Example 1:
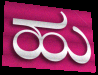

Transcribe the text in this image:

ಹು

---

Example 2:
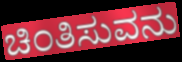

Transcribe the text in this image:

ಚಿಂತಿಸುವನು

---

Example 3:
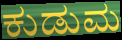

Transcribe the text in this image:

ಕುಡುಮ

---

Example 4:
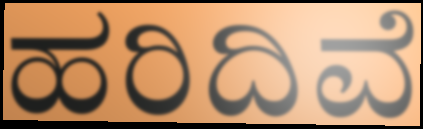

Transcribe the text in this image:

ಹರಿದಿವೆ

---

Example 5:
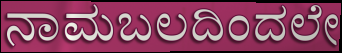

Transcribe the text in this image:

ನಾಮಬಲದಿಂದಲೇ